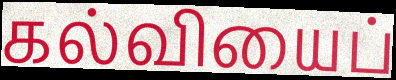
கல்வியைப்